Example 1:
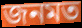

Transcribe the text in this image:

জনমত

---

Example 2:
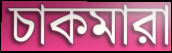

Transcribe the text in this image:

চাকমারা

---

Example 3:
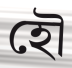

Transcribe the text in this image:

হৌ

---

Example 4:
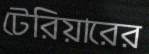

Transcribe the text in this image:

টেরিয়ারের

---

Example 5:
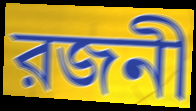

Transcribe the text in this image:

রজনী